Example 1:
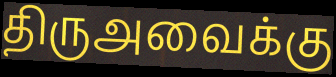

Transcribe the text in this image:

திருஅவைக்கு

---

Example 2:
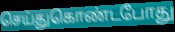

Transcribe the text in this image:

செய்துகொண்டபோது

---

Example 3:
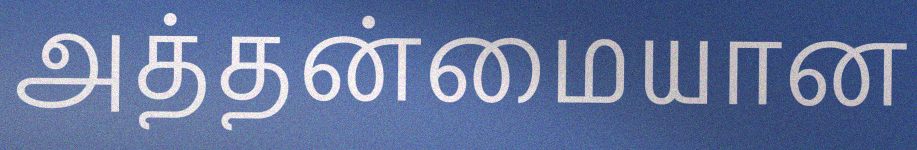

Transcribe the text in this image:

அத்தன்மையான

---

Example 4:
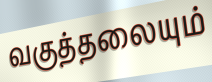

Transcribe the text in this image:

வகுத்தலையும்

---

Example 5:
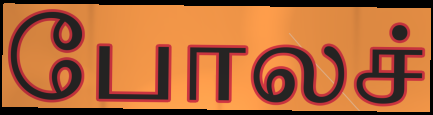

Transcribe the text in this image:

போலச்